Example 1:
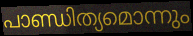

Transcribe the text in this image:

പാണ്ഡിത്യമൊന്നും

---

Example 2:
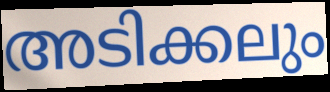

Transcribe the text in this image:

അടിക്കലും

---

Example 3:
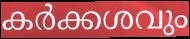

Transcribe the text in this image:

കർക്കശവും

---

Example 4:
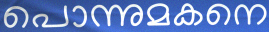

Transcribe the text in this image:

പൊന്നുമകനെ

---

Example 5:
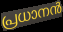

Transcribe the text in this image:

പ്രധാനൻ